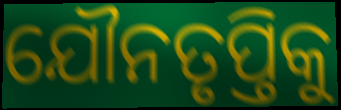
ଯୌନତୃପ୍ତିକୁ